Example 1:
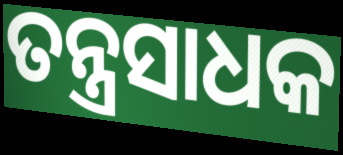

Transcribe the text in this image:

ତନ୍ତ୍ରସାଧକ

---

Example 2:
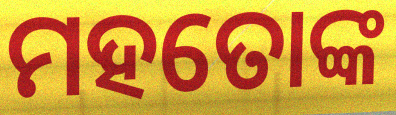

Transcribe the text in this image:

ମହତୋଙ୍କ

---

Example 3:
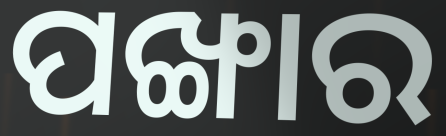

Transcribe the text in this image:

ପଙ୍ଖାର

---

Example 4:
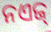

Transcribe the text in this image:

ନଏଜ୍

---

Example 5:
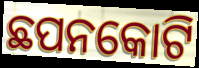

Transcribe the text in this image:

ଛପନକୋଟି